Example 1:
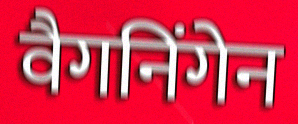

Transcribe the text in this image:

वैगनिंगेन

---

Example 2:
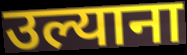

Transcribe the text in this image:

उल्याना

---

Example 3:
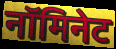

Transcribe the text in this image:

नॉमिनेट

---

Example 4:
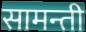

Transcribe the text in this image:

सामन्ती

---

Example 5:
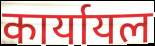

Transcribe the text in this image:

कार्यायल